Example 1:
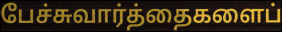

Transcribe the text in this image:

பேச்சுவார்த்தைகளைப்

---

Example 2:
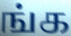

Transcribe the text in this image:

ங்க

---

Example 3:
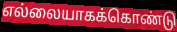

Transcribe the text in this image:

எல்லையாகக்கொண்டு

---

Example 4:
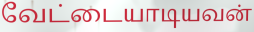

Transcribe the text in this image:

வேட்டையாடியவன்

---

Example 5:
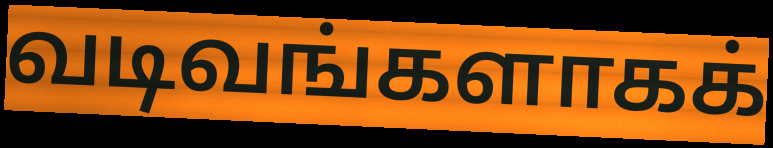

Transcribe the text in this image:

வடிவங்களாகக்